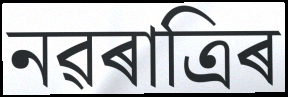
নৱৰাত্ৰিৰ